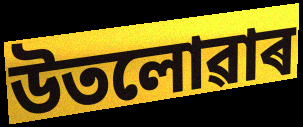
উতলোৱাৰ